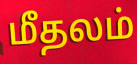
மீதலம்